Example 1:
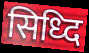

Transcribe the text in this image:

सिध्दि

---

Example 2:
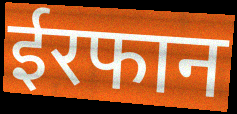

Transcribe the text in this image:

ईरफान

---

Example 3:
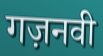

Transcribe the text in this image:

गज़नवी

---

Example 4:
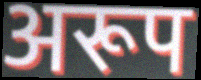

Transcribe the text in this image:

अरूप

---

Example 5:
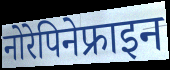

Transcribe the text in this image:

नोरेपिनेफ्राइन